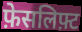
फ़ेसलिफ़्ट